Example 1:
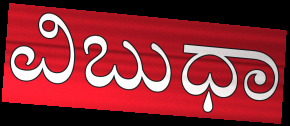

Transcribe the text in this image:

ವಿಬುಧಾ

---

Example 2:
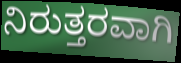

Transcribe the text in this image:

ನಿರುತ್ತರವಾಗಿ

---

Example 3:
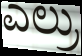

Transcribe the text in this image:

ಎಲ್ರು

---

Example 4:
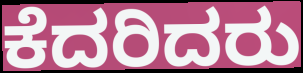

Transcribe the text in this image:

ಕೆದರಿದರು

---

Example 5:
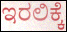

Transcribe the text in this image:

ಇರಲಿಕ್ಕೆ